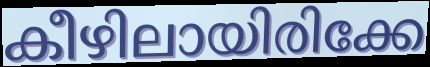
കീഴിലായിരിക്കേ